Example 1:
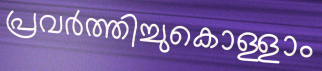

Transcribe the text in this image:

പ്രവർത്തിച്ചുകൊള്ളാം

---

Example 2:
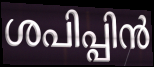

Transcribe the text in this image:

ശപിപ്പിൻ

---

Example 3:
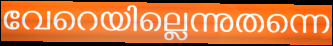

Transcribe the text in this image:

വേറെയില്ലെന്നുതന്നെ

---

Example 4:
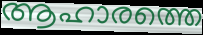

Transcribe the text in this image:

ആഹാരത്തെ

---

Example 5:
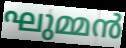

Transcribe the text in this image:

ഘുമ്മൻ